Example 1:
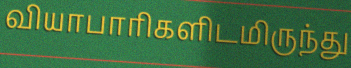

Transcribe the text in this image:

வியாபாரிகளிடமிருந்து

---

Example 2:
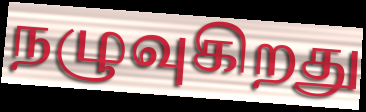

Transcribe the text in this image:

நழுவுகிறது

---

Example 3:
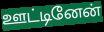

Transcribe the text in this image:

ஊட்டினேன்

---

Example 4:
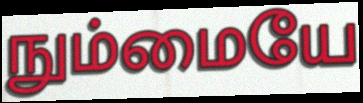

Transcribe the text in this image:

நும்மையே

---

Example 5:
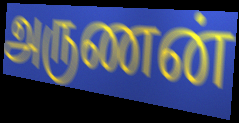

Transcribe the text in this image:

அருணன்